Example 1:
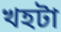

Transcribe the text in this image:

খহটা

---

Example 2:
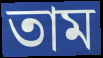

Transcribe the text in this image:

তাম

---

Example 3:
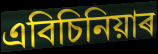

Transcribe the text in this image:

এবিচিনিয়াৰ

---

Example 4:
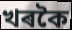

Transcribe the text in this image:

খৰকৈ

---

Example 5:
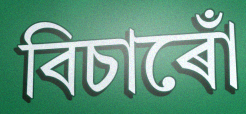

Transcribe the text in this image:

বিচাৰোঁ